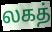
லகத்